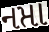
નપ્તા